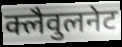
क्लैवुलनेट